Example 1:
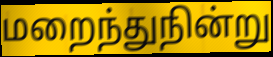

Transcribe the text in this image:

மறைந்துநின்று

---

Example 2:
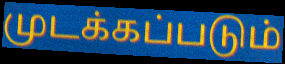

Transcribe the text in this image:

முடக்கப்படும்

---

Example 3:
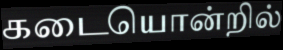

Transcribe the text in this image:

கடையொன்றில்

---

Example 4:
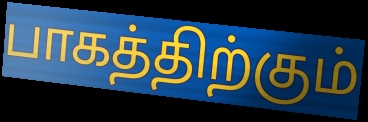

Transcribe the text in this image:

பாகத்திற்கும்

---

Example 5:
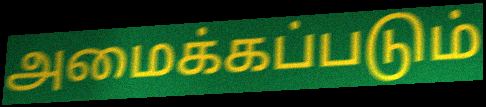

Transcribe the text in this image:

அமைக்கப்படும்